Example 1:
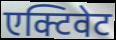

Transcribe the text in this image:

एक्टिवेट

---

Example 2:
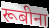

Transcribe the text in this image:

रूबीना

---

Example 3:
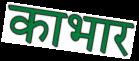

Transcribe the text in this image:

काभार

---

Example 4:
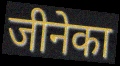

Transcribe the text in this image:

जीनेका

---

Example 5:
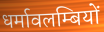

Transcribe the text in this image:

धर्मावलम्बियों